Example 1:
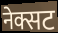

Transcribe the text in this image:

नेक्सट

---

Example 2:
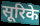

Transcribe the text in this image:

सूरिके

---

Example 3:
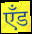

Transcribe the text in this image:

एँड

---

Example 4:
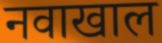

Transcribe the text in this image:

नवाखाल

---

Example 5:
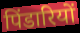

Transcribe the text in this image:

पिंडारियों